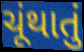
ચૂંથાતું